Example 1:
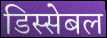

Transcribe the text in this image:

डिस्सेबल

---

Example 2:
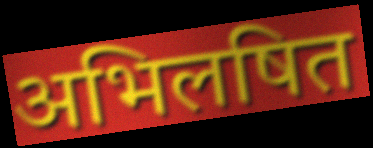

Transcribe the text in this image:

अभिलषित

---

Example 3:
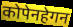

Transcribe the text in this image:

कोपेनहेगन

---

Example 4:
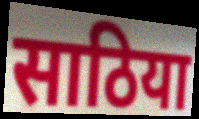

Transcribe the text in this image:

साठिया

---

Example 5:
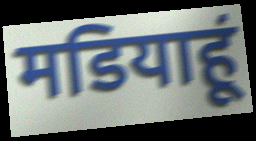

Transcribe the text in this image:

मडियाहूं